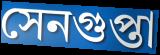
সেনগুপ্তা